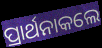
ପ୍ରାର୍ଥନାକଲେ